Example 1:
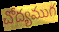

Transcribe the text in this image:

చోద్యముగ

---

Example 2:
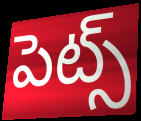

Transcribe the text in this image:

పెట్స్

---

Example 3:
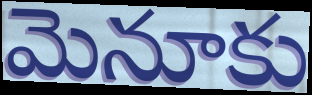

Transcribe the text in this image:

మెనూకు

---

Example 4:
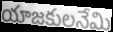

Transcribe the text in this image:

యాజకులనేమి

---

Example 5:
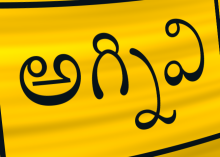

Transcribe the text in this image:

అగ్నివి